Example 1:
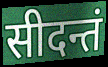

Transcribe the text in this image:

सीदन्तं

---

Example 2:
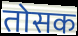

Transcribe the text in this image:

तोसक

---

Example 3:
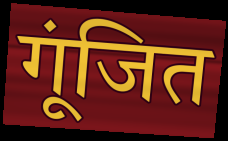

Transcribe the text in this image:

गूंजित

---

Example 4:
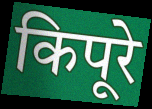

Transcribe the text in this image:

किपूरे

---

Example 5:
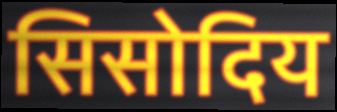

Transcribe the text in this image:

सिसोदिय